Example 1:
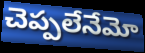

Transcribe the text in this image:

చెప్పలేనేమో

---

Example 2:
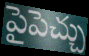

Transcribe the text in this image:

పైపెచ్చు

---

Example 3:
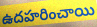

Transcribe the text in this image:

ఉదహరించాయి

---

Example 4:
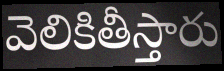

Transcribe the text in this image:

వెలికితీస్తారు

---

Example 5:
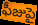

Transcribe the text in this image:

ఫీజుపై